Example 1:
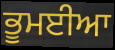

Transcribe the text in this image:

ਭੂਮਈਆ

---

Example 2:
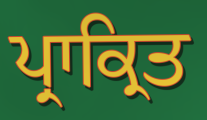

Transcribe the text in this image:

ਪ੍ਰਾਕ੍ਰਿਤ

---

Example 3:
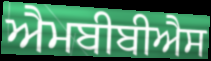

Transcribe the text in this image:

ਐਮਬੀਬੀਐਸ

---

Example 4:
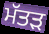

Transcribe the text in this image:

ਮੱਤੜ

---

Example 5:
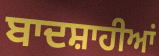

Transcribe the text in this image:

ਬਾਦਸ਼ਾਹੀਆਂ